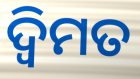
ଦ୍ୱିମତ